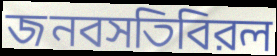
জনবসতিবিরল